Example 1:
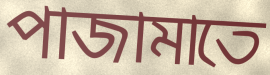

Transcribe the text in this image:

পাজামাতে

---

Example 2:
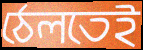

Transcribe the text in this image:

ঠেলতেই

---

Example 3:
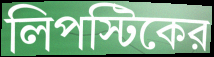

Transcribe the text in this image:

লিপস্টিকের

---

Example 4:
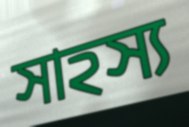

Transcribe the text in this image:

সাহস্য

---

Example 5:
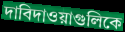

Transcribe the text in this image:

দাবিদাওয়াগুলিকে